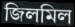
জিলমিল